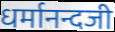
धर्मानन्दजी